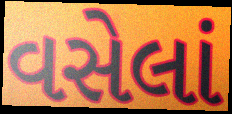
વસેલાં